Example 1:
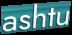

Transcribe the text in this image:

ashtu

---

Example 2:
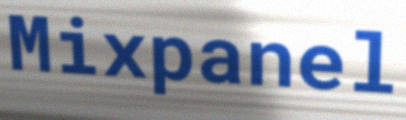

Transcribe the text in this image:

Mixpanel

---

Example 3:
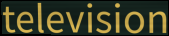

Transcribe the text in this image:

television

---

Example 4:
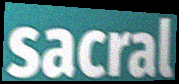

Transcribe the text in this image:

sacral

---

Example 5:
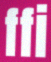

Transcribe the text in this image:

ffi